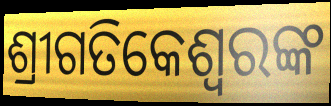
ଶ୍ରୀଗତିକେଶ୍ବରଙ୍କ